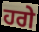
ਹਗੇ